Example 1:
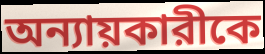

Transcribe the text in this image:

অন্যায়কারীকে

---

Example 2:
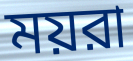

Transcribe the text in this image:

ময়রা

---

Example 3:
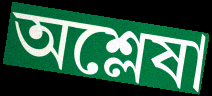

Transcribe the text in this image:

অশ্লেষা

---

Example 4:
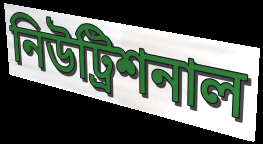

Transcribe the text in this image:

নিউট্রিশনাল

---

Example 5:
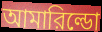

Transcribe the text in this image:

আমারিল্ডো